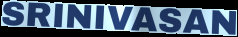
SRINIVASAN